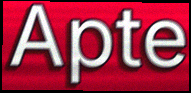
Apte